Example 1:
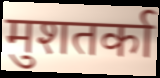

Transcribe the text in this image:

मुशतर्का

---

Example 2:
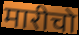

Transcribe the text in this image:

मारीचो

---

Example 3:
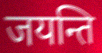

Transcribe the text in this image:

जयन्ति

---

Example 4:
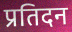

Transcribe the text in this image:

प्रतिदन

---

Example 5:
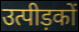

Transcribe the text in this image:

उत्पीड़कों